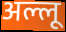
अल्लू